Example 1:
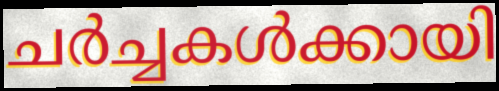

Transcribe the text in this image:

ചർച്ചകൾക്കായി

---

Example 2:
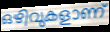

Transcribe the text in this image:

ഒഴിവുകളാണ്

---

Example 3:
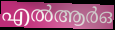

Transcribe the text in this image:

എൽആർഒ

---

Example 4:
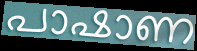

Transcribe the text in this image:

പാഷാണ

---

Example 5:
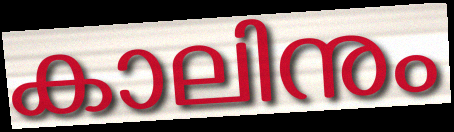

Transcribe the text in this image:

കാലിനും